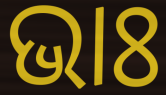
ଭାଃ